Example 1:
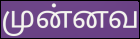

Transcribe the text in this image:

முன்னவ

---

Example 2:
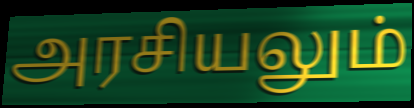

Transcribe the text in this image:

அரசியலும்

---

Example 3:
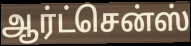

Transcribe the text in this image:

ஆர்ட்சென்ஸ்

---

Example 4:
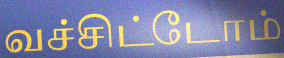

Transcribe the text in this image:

வச்சிட்டோம்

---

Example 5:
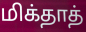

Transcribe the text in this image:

மிக்தாத்